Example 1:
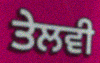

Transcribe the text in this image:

ਤੇਲਵੀ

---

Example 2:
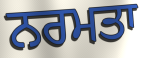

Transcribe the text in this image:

ਨਰਮਤਾ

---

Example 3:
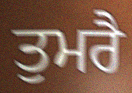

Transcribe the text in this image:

ਤੁਮਰੈ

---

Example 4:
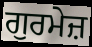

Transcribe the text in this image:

ਗੁਰਮੇਜ਼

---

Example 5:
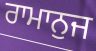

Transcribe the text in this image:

ਰਾਮਾਨੁਜ